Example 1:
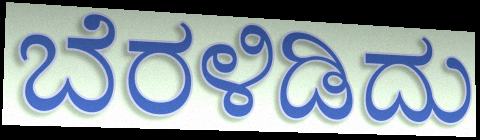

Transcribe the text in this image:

ಬೆರಳಿಡಿದು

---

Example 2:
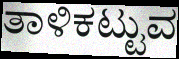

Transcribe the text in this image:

ತಾಳಿಕಟ್ಟುವ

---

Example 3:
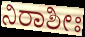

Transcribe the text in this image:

ನಿರಾಶೀಃ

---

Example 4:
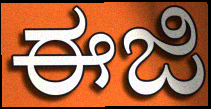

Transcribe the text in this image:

ಈಜಿ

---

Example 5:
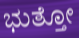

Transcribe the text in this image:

ಭುತ್ತೋ